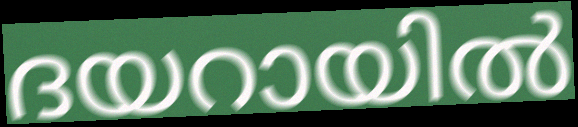
ദയറായിൽ